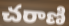
చరాణి